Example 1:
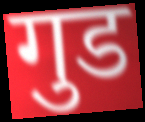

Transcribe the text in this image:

गुड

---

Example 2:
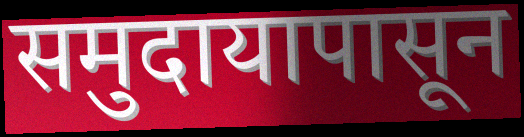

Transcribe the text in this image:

समुदायापासून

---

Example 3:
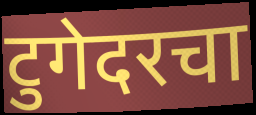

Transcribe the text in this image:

टुगेदरचा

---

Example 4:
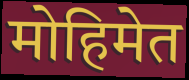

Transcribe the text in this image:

मोहिमेत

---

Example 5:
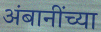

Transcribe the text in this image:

अंबानींच्या